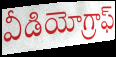
వీడియోగ్రాఫ్